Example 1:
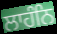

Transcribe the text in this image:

ਲਾਹੰਨਿ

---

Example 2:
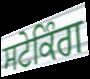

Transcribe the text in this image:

ਸਟੇਕਿੰਗ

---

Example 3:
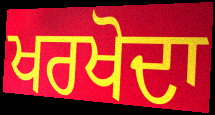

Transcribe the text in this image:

ਖਰਖੋਦਾ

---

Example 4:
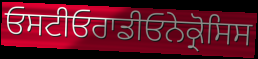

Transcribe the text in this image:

ਓਸਟੀਓਰਾਡੀਓਨੇਕ੍ਰੋਸਿਸ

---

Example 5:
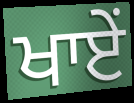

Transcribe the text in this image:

ਖਾਏਂ